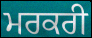
ਮਰਕਰੀ